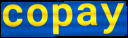
copay